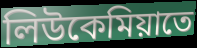
লিউকেমিয়াতে